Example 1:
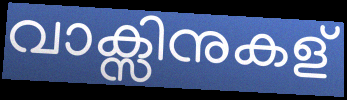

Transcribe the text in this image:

വാക്സിനുകള്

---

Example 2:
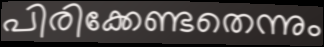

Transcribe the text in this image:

പിരിക്കേണ്ടതെന്നും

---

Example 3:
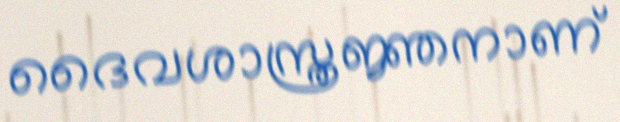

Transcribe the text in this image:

ദൈവശാസ്ത്രജ്ഞനാണ്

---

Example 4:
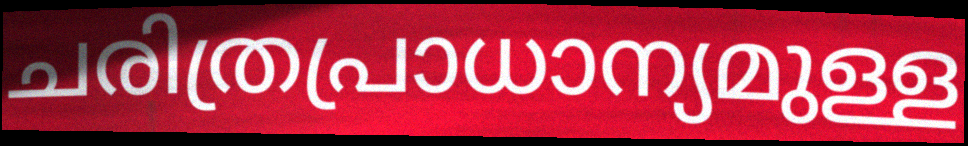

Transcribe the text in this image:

ചരിത്രപ്രാധാന്യമുള്ള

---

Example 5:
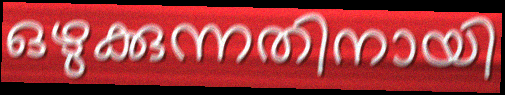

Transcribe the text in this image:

ഒഴുക്കുന്നതിനായി